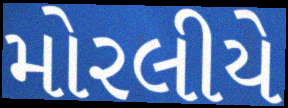
મોરલીયે